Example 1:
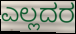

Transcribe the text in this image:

ಎಲ್ಲದರ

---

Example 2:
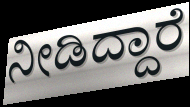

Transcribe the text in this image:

ನೀಡಿದ್ದಾರೆ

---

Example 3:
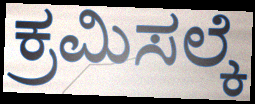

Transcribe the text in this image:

ಕ್ರಮಿಸಲ್ಕೆ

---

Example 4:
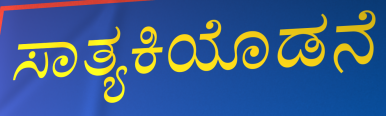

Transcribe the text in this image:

ಸಾತ್ಯಕಿಯೊಡನೆ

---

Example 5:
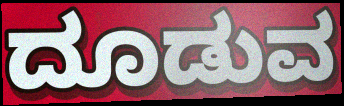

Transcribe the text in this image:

ದೂಡುವ